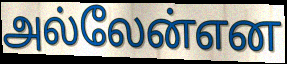
அல்லேன்என